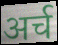
अर्च